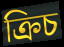
ক্রিচ